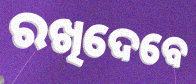
ରଖିଦେବେ